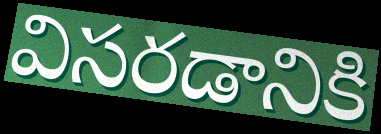
విసరడానికి